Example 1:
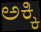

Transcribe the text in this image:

ಅಕ್ಕಿ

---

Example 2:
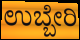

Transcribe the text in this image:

ಉಬ್ಬೇರಿ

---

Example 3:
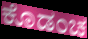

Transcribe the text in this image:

ಕೊಡಂಚ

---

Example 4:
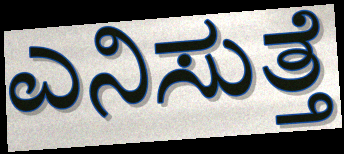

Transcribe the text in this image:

ಎನಿಸುತ್ತೆ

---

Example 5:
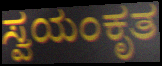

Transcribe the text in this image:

ಸ್ವಯಂಕೃತ